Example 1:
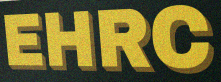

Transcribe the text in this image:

EHRC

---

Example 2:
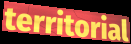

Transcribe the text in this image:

territorial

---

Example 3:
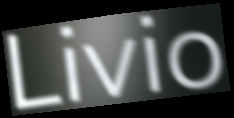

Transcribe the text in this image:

Livio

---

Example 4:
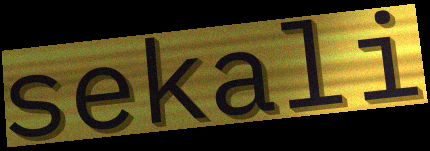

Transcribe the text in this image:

sekali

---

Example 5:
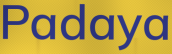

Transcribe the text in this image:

Padaya